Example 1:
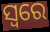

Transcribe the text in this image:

ସ୍ୱରେ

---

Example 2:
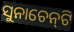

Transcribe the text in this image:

ସୁନାଚେନ୍‍ଟି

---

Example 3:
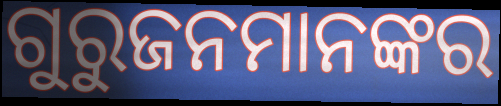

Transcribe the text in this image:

ଗୁରୁଜନମାନଙ୍କର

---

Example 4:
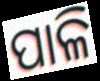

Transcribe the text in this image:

ପାଳି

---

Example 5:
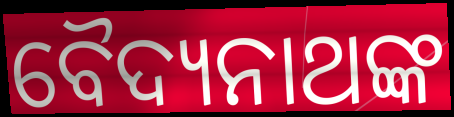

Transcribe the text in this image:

ବୈଦ୍ୟନାଥଙ୍କ